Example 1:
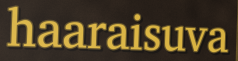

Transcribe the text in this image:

haaraisuva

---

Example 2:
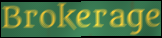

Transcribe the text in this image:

Brokerage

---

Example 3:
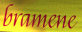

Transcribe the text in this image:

bramene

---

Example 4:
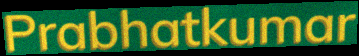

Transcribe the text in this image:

Prabhatkumar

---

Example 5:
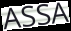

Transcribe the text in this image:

ASSA